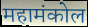
महामंकोल